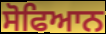
ਸੋਫਿਆਨ